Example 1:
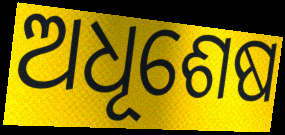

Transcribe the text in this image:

ଅଧୂଶେଷ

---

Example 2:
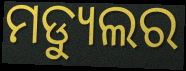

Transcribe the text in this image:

ମଡ୍ୟୁଲର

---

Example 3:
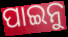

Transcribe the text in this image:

ପାଇନୁ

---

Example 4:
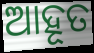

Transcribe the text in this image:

ଆହୂତ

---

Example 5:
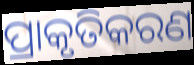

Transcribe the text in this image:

ପ୍ରାକୃତିକରଣ